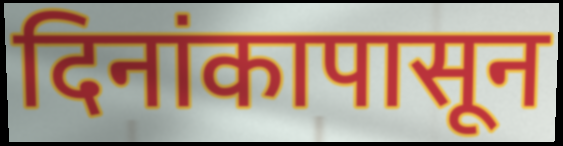
दिनांकापासून